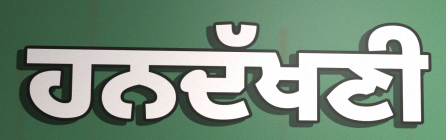
ਹਨਦੱਖਣੀ